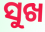
ସୁଖ